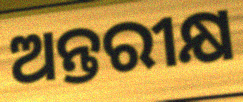
ଅନ୍ତରୀକ୍ଷ